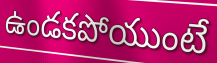
ఉండకపోయుంటే